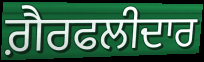
ਗ਼ੈਰਫਲੀਦਾਰ